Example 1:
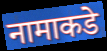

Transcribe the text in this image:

नामाकडे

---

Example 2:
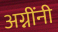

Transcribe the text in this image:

अग्नींनी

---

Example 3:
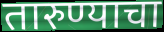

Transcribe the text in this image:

तारुण्याचा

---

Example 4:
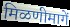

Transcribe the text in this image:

मिळणीमागें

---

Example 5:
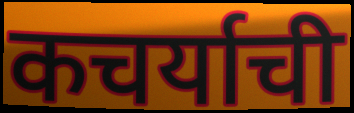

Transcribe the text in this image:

कचर्याची